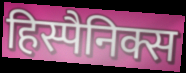
हिस्पैनिक्स